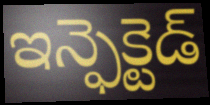
ఇన్ఫెక్టెడ్